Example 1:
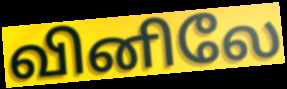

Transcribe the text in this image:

வினிலே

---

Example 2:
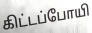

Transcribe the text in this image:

கிட்டப்போயி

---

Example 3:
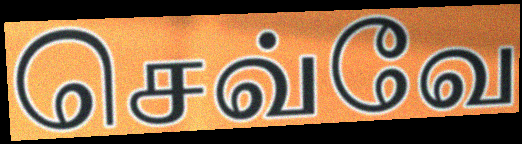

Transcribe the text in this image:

செவ்வே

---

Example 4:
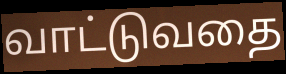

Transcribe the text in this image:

வாட்டுவதை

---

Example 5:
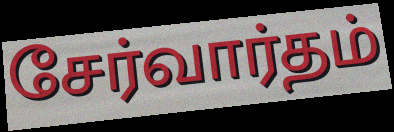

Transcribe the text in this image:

சேர்வார்தம்